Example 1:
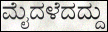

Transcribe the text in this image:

ಮೈದಳೆದದ್ದು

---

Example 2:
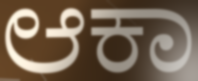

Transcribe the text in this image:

ಆಕಾ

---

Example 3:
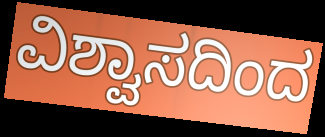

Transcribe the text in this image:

ವಿಶ್ವಾಸದಿಂದ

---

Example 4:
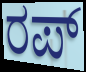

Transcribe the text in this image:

ರಪ್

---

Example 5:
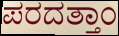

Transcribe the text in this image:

ಪರದತ್ತಾಂ